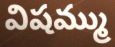
విషమ్ము